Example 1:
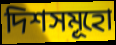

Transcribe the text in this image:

দিশসমূহো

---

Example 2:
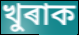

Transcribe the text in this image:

খুৰাক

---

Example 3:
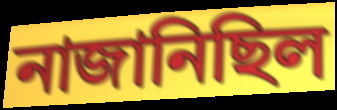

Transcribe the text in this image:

নাজানিছিল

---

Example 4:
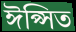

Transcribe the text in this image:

ঈপ্সিত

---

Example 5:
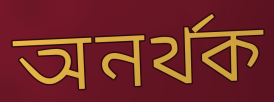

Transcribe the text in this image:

অনৰ্থক